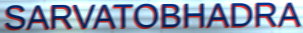
SARVATOBHADRA